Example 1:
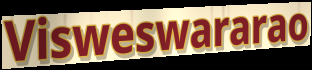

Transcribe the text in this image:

Visweswararao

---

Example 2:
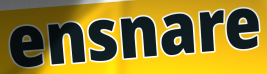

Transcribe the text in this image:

ensnare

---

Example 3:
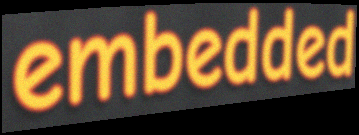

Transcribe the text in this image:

embedded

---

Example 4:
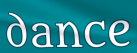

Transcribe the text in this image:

dance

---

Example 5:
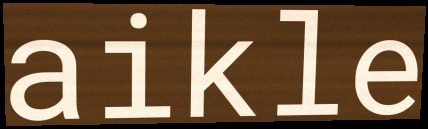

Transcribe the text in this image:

aikle